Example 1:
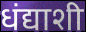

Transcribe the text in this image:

धंद्याशी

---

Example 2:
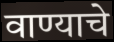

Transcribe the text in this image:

वाण्याचे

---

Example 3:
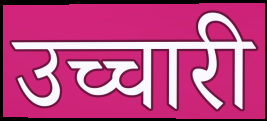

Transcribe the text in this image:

उच्चारी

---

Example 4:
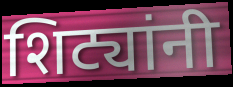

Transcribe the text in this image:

शिट्यांनी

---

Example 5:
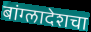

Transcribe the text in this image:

बांग्लादेशचा